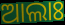
ଆଲାଃ